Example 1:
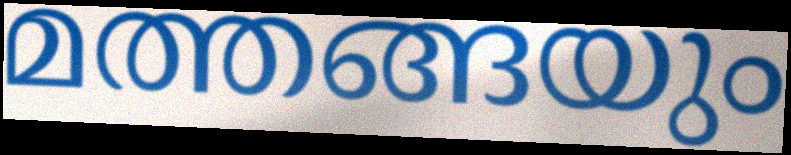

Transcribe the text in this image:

മത്തങ്ങയും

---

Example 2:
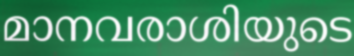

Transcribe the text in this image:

മാനവരാശിയുടെ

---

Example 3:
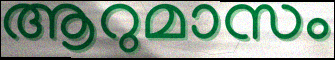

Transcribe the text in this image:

ആറുമാസം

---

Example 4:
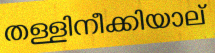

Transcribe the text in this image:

തള്ളിനീക്കിയാല്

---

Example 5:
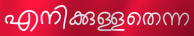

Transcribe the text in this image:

എനിക്കുള്ളതെന്ന